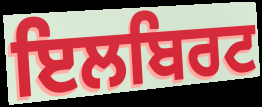
ਇਲਬਿਰਟ